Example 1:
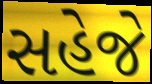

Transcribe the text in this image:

સહેજે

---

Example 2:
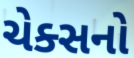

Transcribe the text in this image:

ચેક્સનો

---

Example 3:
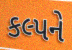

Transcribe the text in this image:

કલ્પને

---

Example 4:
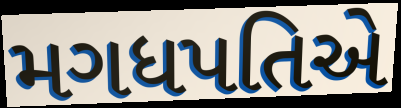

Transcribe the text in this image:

મગધપતિએ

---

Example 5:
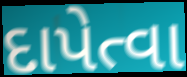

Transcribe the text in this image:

દાપેત્વા